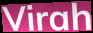
Virah